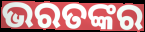
ଭରତଙ୍କର